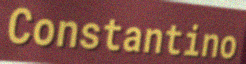
Constantino